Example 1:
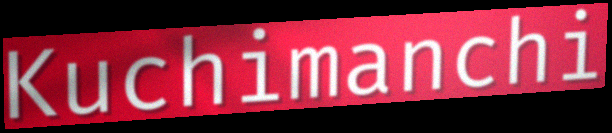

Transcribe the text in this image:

Kuchimanchi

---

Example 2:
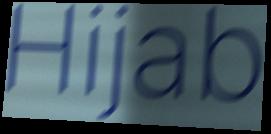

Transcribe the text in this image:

Hijab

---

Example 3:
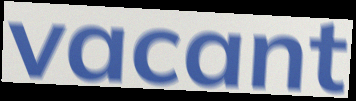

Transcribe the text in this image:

vacant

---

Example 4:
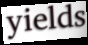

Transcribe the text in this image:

yields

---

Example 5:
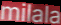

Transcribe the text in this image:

milala